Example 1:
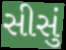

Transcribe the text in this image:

સીસું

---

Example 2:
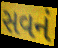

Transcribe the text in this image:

સવનં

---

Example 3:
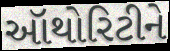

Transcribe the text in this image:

ઑથોરિટીને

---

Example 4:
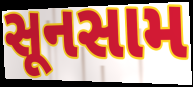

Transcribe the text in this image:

સૂનસામ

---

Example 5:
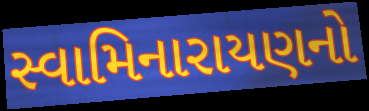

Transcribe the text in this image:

સ્વામિનારાયણનો